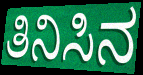
ತಿನಿಸಿನ